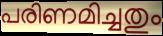
പരിണമിച്ചതും